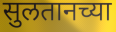
सुलतानच्या